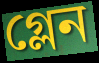
গ্লেন